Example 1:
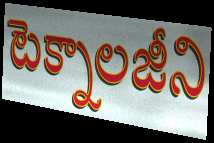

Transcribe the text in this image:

టెక్నాలజీని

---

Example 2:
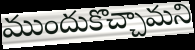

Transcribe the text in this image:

ముందుకొచ్చామని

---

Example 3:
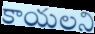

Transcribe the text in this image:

కాయలని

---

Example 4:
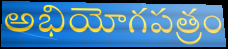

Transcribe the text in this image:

అభియోగపత్రం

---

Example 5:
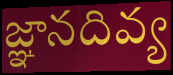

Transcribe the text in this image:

జ్ఞానదివ్య